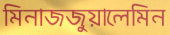
মিনাজজুয়ালেমিন